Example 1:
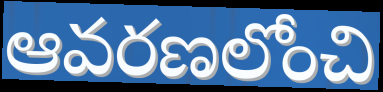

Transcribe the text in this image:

ఆవరణలోంచి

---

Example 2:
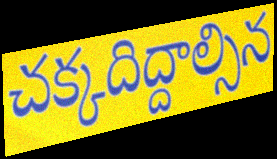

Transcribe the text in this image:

చక్కదిద్దాల్సిన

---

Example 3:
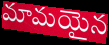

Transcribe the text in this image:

మామయైన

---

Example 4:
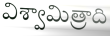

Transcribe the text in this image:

విశ్వామిత్రాది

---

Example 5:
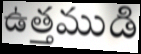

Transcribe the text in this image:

ఉత్తముడి